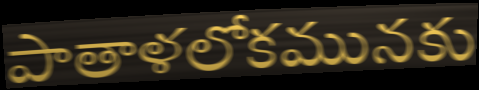
పాతాళలోకమునకు